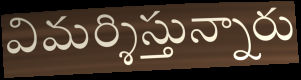
విమర్శిస్తున్నారు